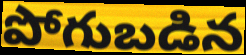
పోగుబడిన